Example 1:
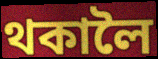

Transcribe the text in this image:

থকালৈ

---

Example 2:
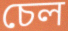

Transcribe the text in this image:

চেল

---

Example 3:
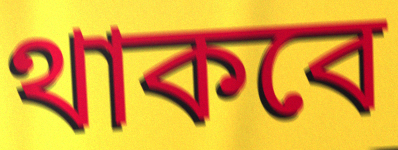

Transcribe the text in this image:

থাকবে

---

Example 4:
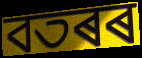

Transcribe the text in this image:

বতৰৰ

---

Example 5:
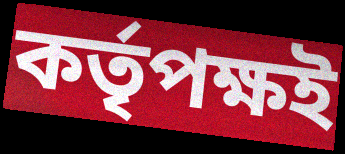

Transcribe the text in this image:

কৰ্তৃপক্ষই